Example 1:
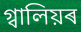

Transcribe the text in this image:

গ্বালিয়ৰ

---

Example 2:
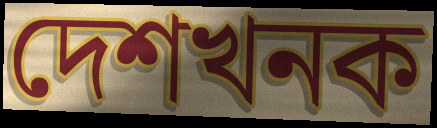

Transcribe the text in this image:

দেশখনক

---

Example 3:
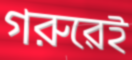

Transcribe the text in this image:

গৰুৱেই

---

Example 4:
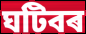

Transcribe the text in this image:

ঘটিবৰ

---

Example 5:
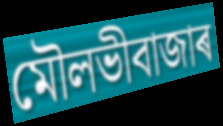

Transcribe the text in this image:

মৌলভীবাজাৰ